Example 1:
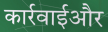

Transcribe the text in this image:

कार्रवाईऔर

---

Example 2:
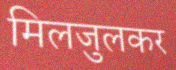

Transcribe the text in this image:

मिलजुलकर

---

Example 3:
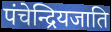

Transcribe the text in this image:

पंचेन्द्रियजाति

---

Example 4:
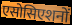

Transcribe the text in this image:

एसोसिएशनों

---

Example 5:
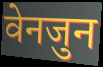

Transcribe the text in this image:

वेनजुन